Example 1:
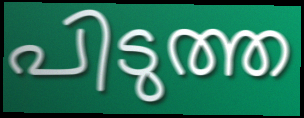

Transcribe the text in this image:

പിടുത്ത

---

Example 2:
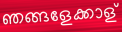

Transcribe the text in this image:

ഞങ്ങളേക്കാള്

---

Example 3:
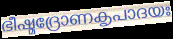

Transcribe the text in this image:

ഭീഷ്മദ്രോണകൃപാദയഃ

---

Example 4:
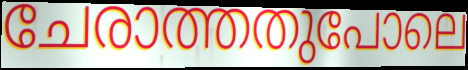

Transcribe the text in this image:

ചേരാത്തതുപോലെ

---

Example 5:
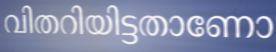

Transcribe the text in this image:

വിതറിയിട്ടതാണോ